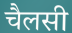
चैलसी